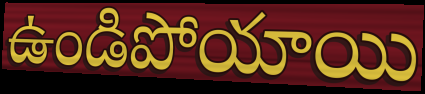
ఉండిపోయాయి